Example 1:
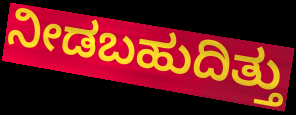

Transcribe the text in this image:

ನೀಡಬಹುದಿತ್ತು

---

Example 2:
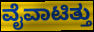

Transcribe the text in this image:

ವೈವಾಟಿತ್ತು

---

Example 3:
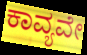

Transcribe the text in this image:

ಕಾವ್ಯವೇ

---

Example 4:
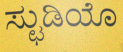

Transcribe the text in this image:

ಸ್ಟುಡಿಯೊ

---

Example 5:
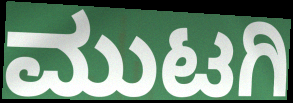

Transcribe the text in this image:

ಮುಟಗಿ